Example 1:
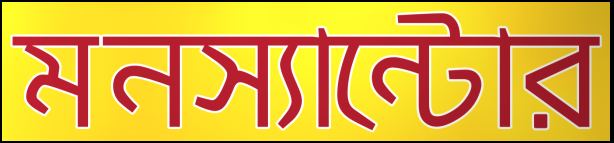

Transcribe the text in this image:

মনস্যান্টোর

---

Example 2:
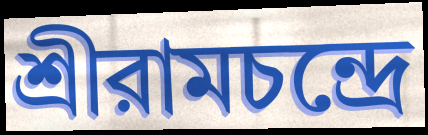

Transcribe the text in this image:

শ্রীরামচন্দ্রে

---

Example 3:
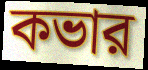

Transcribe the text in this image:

কভার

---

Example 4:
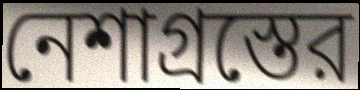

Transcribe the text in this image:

নেশাগ্রস্তের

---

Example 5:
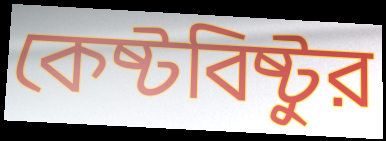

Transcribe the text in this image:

কেষ্টবিষ্টুর